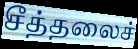
சீத்தலைச்